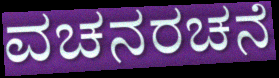
ವಚನರಚನೆ